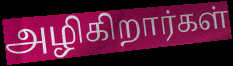
அழிகிறார்கள்